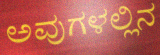
ಅವುಗಳಲ್ಲಿನ